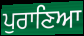
ਪੁਰਾਣਿਆ